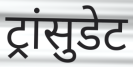
ट्रांसुडेट